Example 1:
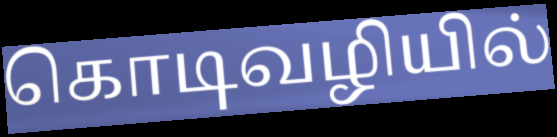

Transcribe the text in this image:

கொடிவழியில்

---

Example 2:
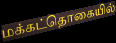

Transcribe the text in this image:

மக்கட்தொகையில்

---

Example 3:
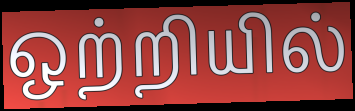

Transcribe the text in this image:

ஒற்றியில்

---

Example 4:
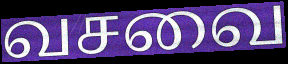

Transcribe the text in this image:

வசவை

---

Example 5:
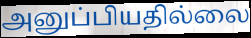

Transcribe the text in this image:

அனுப்பியதில்லை